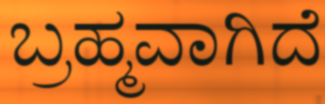
ಬ್ರಹ್ಮವಾಗಿದೆ